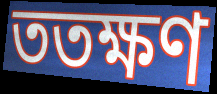
ততক্ষণ